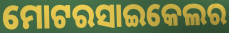
ମୋଟରସାଇକେଲର